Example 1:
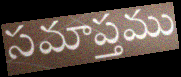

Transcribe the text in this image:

సమాప్తము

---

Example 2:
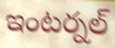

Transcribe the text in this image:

ఇంటర్నల్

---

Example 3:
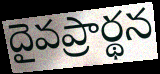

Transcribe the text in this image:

దైవప్రార్థన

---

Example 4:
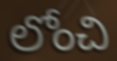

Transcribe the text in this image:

లోంచి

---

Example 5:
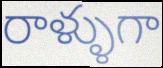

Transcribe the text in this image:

రాళ్ళుగా